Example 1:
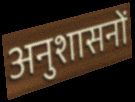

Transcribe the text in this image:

अनुशासनों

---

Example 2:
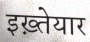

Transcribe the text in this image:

इख़्तेयार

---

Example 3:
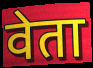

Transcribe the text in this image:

वेता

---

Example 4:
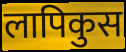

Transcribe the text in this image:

लापिकुस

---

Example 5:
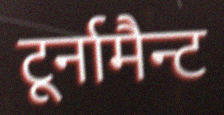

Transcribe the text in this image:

टूर्नामैन्ट